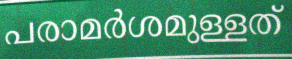
പരാമർശമുള്ളത്